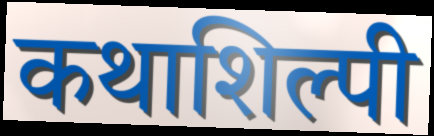
कथाशिल्पी